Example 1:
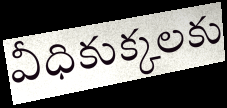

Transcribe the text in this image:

వీధికుక్కలకు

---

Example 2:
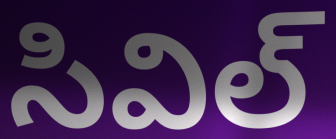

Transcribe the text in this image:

సివిల్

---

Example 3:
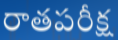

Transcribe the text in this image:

రాతపరీక్ష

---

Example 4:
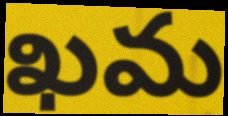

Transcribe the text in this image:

ఖమ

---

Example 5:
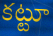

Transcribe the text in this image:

కట్టూ